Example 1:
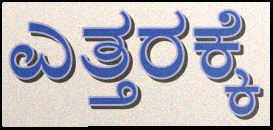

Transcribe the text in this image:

ಎತ್ತರಕ್ಕೆ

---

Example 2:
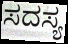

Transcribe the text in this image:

ಸದಸ್ಯ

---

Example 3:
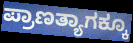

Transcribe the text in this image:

ಪ್ರಾಣತ್ಯಾಗಕ್ಕೂ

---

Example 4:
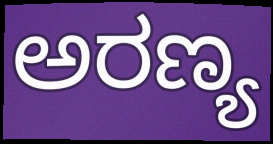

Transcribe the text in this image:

ಅರಣ್ಯ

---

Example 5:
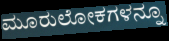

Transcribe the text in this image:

ಮೂರುಲೋಕಗಳನ್ನೂ